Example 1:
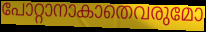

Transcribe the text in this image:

പോറ്റാനാകാതെവരുമോ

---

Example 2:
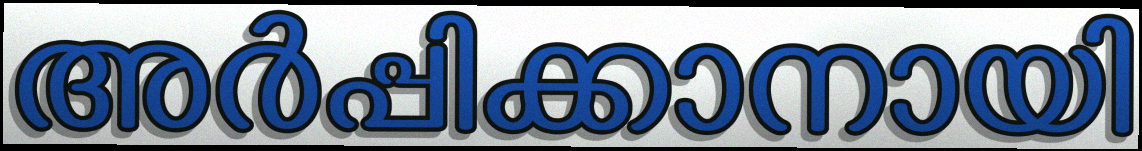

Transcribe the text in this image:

അർപ്പിക്കാനായി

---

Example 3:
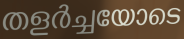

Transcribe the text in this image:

തളർച്ചയോടെ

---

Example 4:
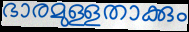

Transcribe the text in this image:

ഭാരമുള്ളതാക്കും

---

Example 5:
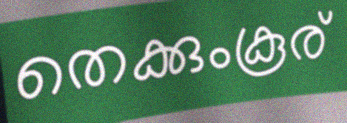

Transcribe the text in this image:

തെക്കുംകൂര്